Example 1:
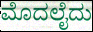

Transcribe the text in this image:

ಮೊದಲೈದು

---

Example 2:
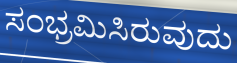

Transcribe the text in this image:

ಸಂಭ್ರಮಿಸಿರುವುದು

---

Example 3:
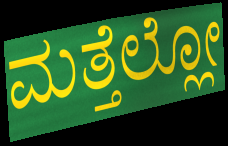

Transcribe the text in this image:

ಮತ್ತೆಲ್ಲೋ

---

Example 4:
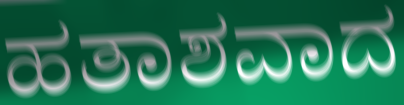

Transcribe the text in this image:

ಹತಾಶವಾದ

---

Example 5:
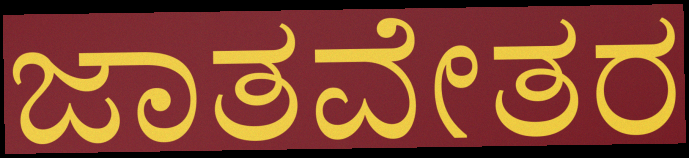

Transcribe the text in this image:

ಜಾತವೇತರ